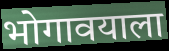
भोगावयाला